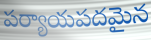
పర్యాయపదమైన